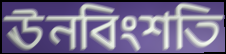
ঊনবিংশতি